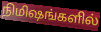
நிமிஷங்களில்